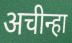
अचीन्हा